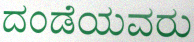
ದಂಡೆಯವರು